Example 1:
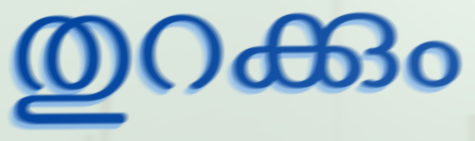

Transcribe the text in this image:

തുറക്കും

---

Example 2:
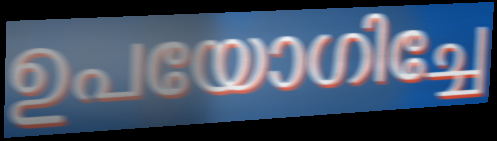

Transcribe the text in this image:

ഉപയോഗിച്ചേ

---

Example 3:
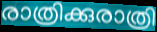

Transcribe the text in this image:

രാത്രിക്കുരാത്രി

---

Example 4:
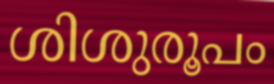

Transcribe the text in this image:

ശിശുരൂപം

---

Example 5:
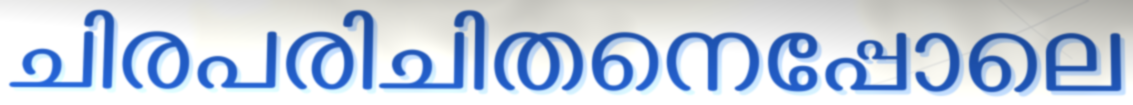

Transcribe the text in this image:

ചിരപരിചിതനെപ്പോലെ